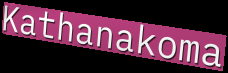
Kathanakoma